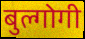
बुल्गोगी